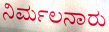
ನಿರ್ಮಲನಾರು